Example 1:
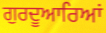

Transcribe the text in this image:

ਗੁਰਦੂਆਰਿਆਂ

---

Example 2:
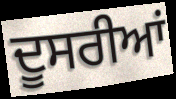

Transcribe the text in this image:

ਦੂਸਰੀਆਂ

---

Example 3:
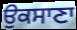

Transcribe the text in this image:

ਉਕਸਾਣਾ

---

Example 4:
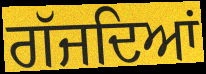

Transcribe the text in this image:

ਗੱਜਦਿਆਂ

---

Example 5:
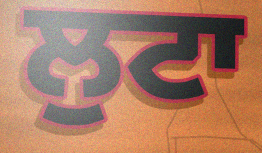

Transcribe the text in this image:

ਲੁਟਾ